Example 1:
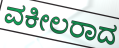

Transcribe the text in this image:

ವಕೀಲರಾದ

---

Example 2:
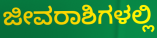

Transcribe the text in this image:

ಜೀವರಾಶಿಗಳಲ್ಲಿ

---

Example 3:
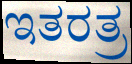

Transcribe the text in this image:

ಇತರತ್ರ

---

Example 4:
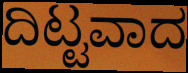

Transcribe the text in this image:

ದಿಟ್ಟವಾದ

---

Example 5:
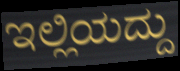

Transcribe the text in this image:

ಇಲ್ಲಿಯದ್ದು